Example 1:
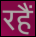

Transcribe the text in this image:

रहैं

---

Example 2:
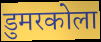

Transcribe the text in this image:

डुमरकोला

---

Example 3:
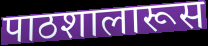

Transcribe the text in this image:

पाठशालारूस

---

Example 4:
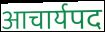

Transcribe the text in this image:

आचार्यपद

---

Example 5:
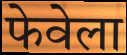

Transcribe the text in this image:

फेवेला